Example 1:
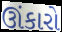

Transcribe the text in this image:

ઊંકારો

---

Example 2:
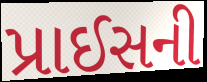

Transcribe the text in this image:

પ્રાઈસની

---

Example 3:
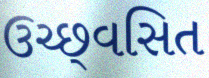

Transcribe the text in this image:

ઉચ્છ્‌વસિત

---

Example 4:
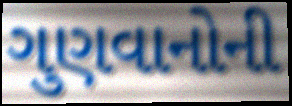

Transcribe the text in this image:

ગુણવાનોની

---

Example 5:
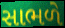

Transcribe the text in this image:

સાભળે